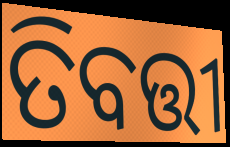
ତିବତ୍ତୀ